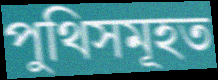
পুথিসমূহত